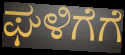
ಘಳಿಗೆಗೆ